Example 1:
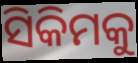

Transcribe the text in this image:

ସିକିମକୁ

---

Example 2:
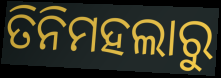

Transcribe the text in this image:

ତିନିମହଲାରୁ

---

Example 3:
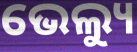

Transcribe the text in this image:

ଭେଲ୍ୟୁ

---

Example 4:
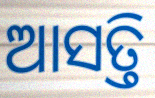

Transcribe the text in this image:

ଆସତ୍ତି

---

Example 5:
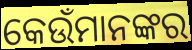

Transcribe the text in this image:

କେଉଁମାନଙ୍କର